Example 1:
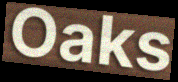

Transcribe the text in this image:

Oaks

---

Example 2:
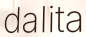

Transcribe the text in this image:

dalita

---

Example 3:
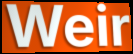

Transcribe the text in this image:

Weir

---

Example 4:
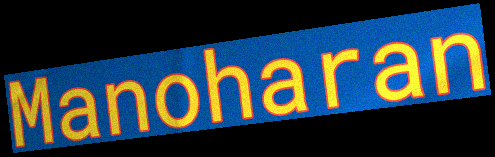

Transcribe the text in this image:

Manoharan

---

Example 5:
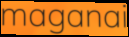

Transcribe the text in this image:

maganai